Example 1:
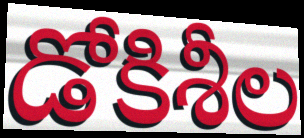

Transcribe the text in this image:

డోకిశీల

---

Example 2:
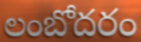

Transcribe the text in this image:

లంబోదరం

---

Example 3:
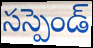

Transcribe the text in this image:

సస్పెండ్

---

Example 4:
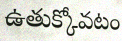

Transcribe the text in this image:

ఉతుక్కోవటం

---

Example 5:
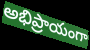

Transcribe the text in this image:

అభిప్రాయంగా